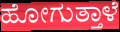
ಹೋಗುತ್ತಾಳೆ